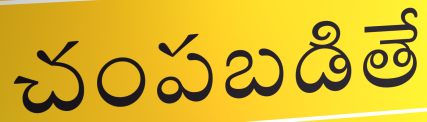
చంపబడితే